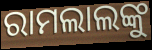
ରାମଲାଲଙ୍କୁ